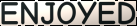
ENJOYED